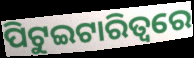
ପିଟୁଇଟାରିତ୍ୱରେ